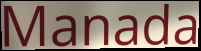
Manada